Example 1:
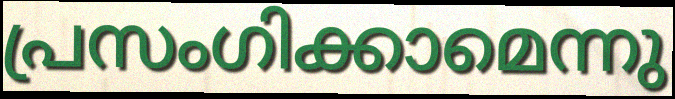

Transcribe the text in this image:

പ്രസംഗിക്കാമെന്നു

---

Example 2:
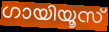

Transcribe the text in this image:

ഗായിയൂസ്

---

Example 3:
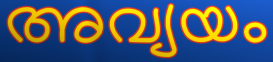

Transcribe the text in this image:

അവ്യയം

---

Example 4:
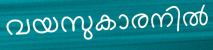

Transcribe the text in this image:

വയസുകാരനിൽ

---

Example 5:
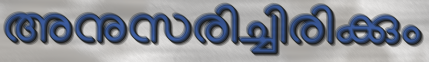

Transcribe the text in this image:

അനുസരിച്ചിരിക്കും